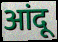
आंदू